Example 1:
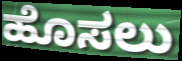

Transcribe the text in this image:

ಹೊಸಲು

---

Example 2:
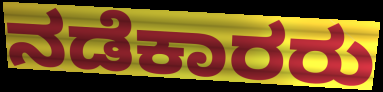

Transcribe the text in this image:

ನಡೆಕಾರರು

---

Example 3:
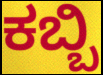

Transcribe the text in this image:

ಕಬ್ಬಿ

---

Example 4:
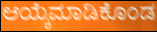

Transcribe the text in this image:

ಆಯ್ಕೆಮಾಡಿಕೊಂಡ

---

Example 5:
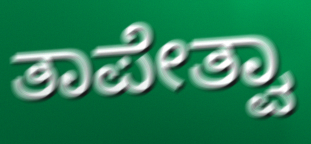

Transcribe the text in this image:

ತಾಪೇತ್ವಾ